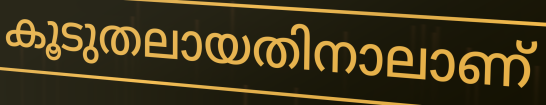
കൂടുതലായതിനാലാണ്